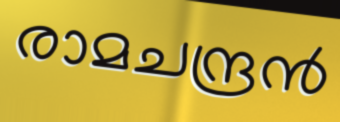
രാമചന്ദ്രൻ